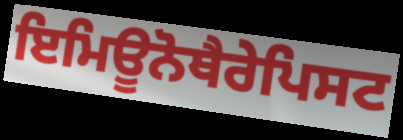
ਇਮਿਊਨੋਥੈਰੇਪਿਸਟ